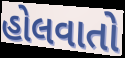
હોલવાતો